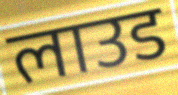
लाउड